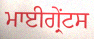
ਮਾਈਗ੍ਰੇਂਟਸ